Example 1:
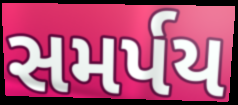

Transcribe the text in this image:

સમર્પય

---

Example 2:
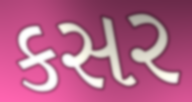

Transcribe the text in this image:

કસર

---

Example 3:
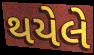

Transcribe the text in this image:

થયેલે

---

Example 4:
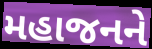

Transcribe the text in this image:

મહાજનને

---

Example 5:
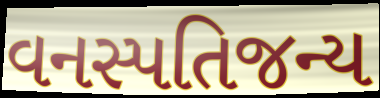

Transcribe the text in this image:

વનસ્પતિજન્ય